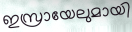
ഇസ്രായേലുമായി